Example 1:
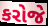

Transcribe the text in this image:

કરોજે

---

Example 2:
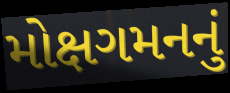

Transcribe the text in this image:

મોક્ષગમનનું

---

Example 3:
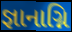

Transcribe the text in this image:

જ્ઞાનાગ્નિ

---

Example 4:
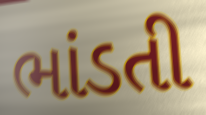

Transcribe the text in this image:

ભાંડતી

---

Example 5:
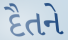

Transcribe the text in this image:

દૈતને